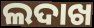
ଲଦାଖ